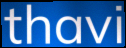
thavi